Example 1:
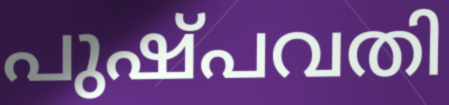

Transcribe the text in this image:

പുഷ്പവതി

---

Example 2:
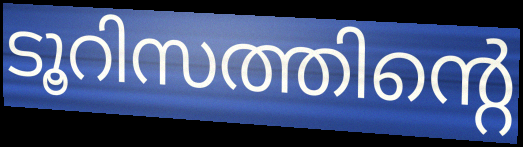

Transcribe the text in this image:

ടൂറിസത്തിന്റെ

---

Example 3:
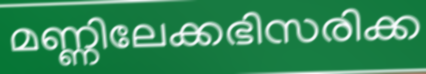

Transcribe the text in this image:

മണ്ണിലേക്കഭിസരിക്ക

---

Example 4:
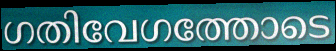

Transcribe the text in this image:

ഗതിവേഗത്തോടെ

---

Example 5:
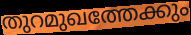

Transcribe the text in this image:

തുറമുഖത്തേക്കും